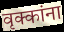
वृक्कांना